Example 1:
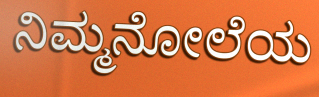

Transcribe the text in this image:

ನಿಮ್ಮನೋಲೆಯ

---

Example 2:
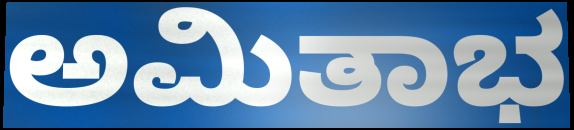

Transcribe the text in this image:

ಅಮಿತಾಭ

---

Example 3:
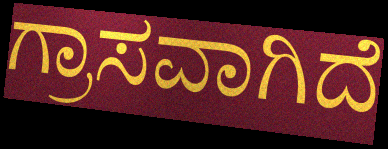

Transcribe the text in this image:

ಗ್ರಾಸವಾಗಿದೆ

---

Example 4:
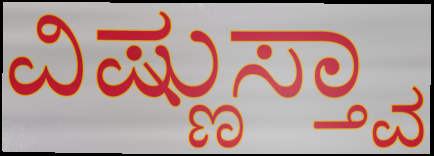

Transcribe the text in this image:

ವಿಷ್ಣುಸ್ತ್ವಾ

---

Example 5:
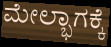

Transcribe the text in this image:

ಮೇಲ್ಭಾಗಕ್ಕೆ